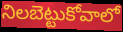
నిలబెట్టుకోవాలో